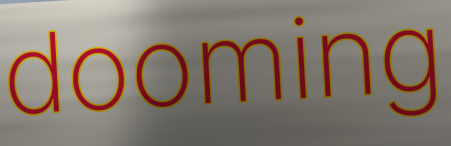
dooming